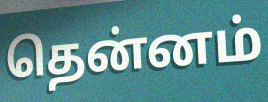
தென்னம்